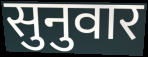
सुनुवार